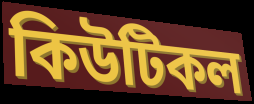
কিউটিকল